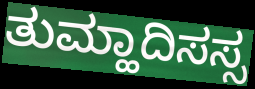
ತುಮ್ಹಾದಿಸಸ್ಸ